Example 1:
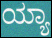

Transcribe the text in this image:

ಯ್ಯಾ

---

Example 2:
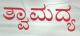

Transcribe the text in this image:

ತ್ವಾಮದ್ಯ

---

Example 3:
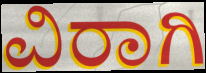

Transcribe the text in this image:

ವಿರಾಗಿ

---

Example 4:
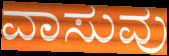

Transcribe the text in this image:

ವಾಸುವು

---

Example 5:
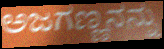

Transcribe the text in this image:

ಅಜಗಣ್ಣನನ್ನು